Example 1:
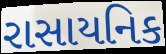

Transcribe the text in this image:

રાસાયનિક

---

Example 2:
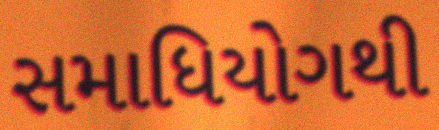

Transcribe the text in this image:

સમાધિયોગથી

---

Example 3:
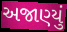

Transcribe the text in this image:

અજાણ્યું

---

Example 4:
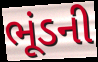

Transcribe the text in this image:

ભૂંડની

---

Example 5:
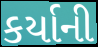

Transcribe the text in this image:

કર્યાની